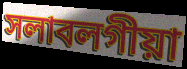
সলাবলগীয়া